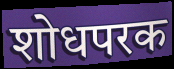
शोधपरक